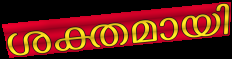
ശക്തമായി